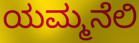
ಯಮ್ಮನೆಲಿ